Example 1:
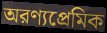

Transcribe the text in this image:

অরণ্যপ্রেমিক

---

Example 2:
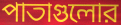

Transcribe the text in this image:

পাতাগুলোর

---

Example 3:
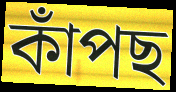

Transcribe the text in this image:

কাঁপছ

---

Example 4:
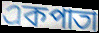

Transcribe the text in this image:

একপাতা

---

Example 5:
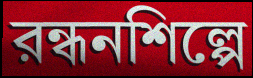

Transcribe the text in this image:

রন্ধনশিল্পে